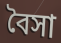
বৈসা